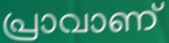
പ്രാവാണ്